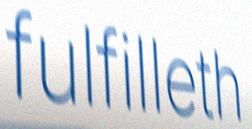
fulfilleth